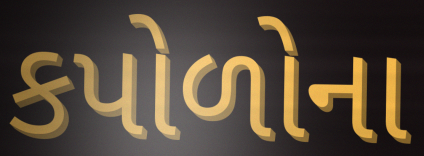
કપોળોના